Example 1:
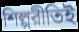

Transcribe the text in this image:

শিল্পরীতিই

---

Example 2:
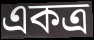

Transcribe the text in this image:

একত্র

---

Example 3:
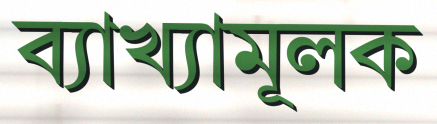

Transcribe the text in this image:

ব্যাখ্যামূলক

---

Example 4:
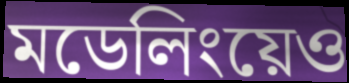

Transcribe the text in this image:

মডেলিংয়েও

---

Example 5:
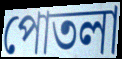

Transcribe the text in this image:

পোতলা